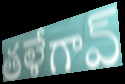
తళేగావ్